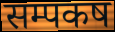
सम्पकष